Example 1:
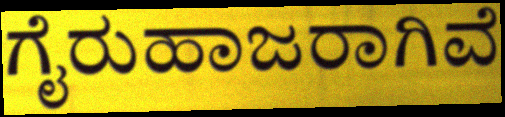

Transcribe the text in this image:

ಗೈರುಹಾಜರಾಗಿವೆ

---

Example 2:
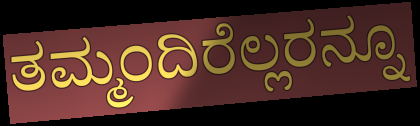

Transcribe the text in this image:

ತಮ್ಮಂದಿರೆಲ್ಲರನ್ನೂ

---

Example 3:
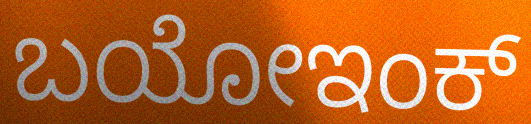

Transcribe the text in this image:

ಬಯೋಇಂಕ್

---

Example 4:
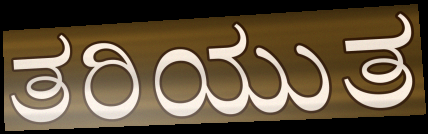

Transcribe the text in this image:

ತರಿಯುತ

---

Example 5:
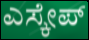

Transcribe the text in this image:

ಎಸ್ಕೇಪ್